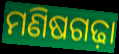
ମଣିଷଗଢ଼ା